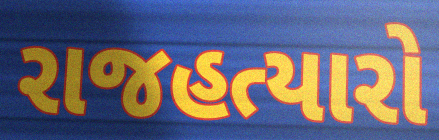
રાજહત્યારો